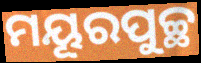
ମୟୂରପୁଚ୍ଛ